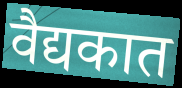
वैद्यकात